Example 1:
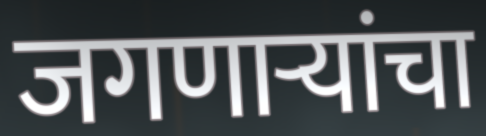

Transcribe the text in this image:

जगणाऱ्यांचा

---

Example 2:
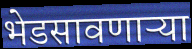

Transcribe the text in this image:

भेडसावणाऱ्या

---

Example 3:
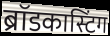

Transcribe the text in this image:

ब्रॉडकास्टिंग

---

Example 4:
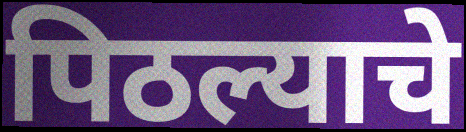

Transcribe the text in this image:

पिठल्याचे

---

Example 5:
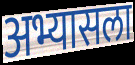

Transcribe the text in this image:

अभ्यासला